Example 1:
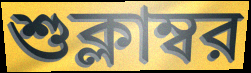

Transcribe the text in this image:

শুক্লাম্বর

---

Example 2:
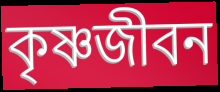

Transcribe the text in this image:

কৃষ্ণজীবন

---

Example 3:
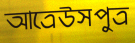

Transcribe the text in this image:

আত্রেউসপুত্র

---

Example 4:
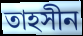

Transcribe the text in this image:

তাহসীন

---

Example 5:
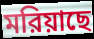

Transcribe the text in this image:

মরিয়াছে